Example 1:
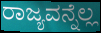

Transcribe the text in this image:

ರಾಜ್ಯವನ್ನೆಲ್ಲ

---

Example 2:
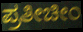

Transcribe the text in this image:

ಪ್ರತೀಚೀಂ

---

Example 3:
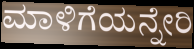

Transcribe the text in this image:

ಮಾಳಿಗೆಯನ್ನೇರಿ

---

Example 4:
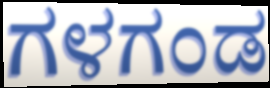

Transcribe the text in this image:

ಗಳಗಂಡ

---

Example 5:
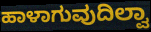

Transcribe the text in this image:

ಹಾಳಾಗುವುದಿಲ್ವಾ